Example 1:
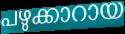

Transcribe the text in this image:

പഴുക്കാറായ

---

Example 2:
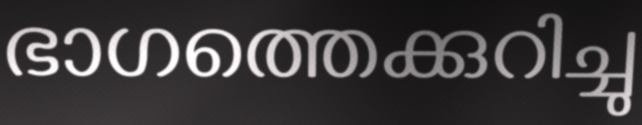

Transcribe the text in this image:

ഭാഗത്തെക്കുറിച്ചു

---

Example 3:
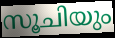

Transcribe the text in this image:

സൂചിയും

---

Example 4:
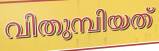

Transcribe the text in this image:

വിതുമ്പിയത്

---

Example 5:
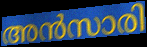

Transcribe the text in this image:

അൻസാരി